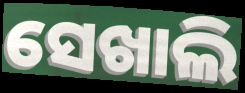
ସେଖାଲି